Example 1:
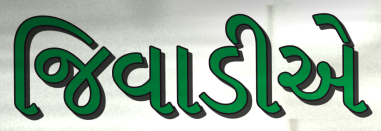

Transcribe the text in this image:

જિવાડીએ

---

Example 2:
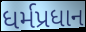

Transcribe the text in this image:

ધર્મપ્રધાન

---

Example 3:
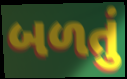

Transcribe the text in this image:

બળતું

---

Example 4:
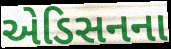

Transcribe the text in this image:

એડિસનના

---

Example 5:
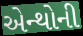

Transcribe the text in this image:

એન્થોની